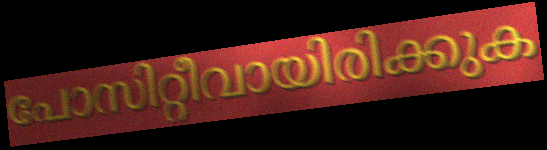
പോസിറ്റീവായിരിക്കുക